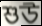
শুউ